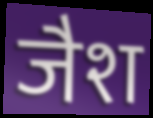
जैश